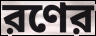
রণের